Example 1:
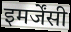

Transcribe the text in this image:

इमर्जेंसी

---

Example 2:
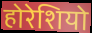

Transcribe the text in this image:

होरेशियो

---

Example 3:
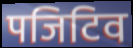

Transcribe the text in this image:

पजिटिव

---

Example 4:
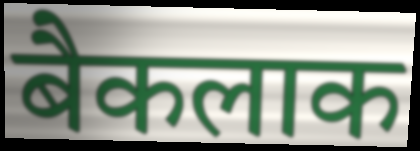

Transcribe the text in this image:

बैकलाक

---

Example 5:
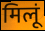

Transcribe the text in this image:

मिलूं